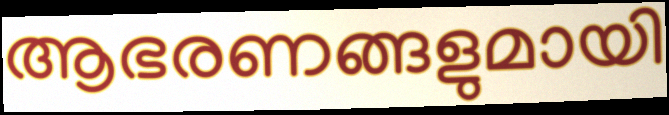
ആഭരണങ്ങളുമായി